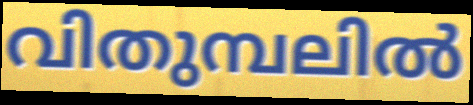
വിതുമ്പലിൽ